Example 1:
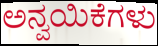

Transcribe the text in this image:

ಅನ್ವಯಿಕೆಗಳು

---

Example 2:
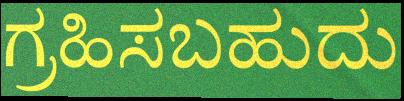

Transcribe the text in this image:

ಗ್ರಹಿಸಬಹುದು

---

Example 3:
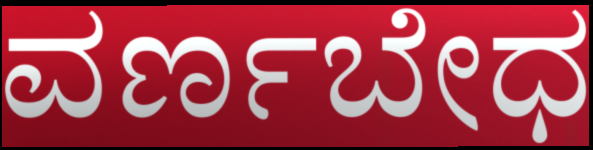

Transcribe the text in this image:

ವರ್ಣಬೇಧ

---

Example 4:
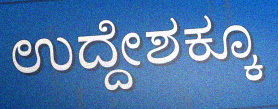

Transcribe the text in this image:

ಉದ್ದೇಶಕ್ಕೂ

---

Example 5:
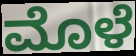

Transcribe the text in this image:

ಮೊಳೆ